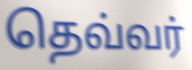
தெவ்வர்